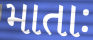
માતાઃ